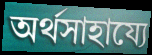
অর্থসাহায্যে